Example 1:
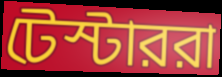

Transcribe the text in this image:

টেস্টাররা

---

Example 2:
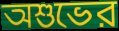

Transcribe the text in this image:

অশুভের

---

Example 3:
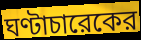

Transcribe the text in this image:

ঘণ্টাচারেকের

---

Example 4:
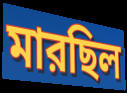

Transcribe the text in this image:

মারছিল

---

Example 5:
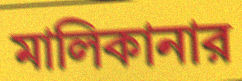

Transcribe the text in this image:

মালিকানার